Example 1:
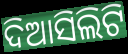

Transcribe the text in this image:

ଦିଆସିଲିଟି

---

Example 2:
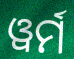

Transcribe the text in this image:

ୱର୍ମ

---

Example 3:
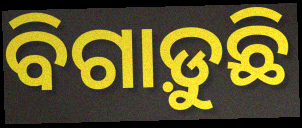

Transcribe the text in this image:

ବିଗାଡ଼ୁଛି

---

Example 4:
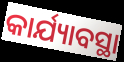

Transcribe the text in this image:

କାର୍ଯ୍ୟାବସ୍ଥା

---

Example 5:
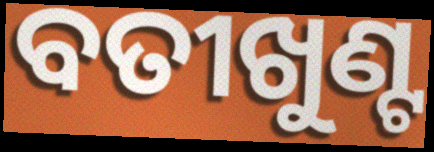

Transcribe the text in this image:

ବତୀଖୁଣ୍ଟ